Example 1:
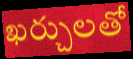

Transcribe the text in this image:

ఖర్చులతో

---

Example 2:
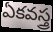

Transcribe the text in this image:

ఏకవస్త్ర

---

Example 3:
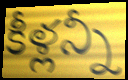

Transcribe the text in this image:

కీళ్లన్నీ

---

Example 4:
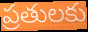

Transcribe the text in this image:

ప్రతులకు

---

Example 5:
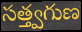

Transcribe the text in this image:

సత్త్వగుణ